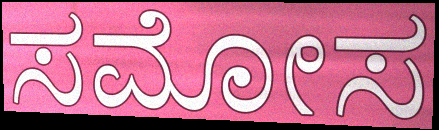
ಸಮೋಸ